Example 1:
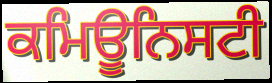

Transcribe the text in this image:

ਕਮਿਊਨਿਸਟੀ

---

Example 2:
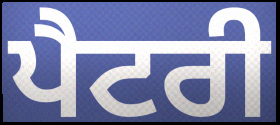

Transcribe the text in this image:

ਪੈਟਰੀ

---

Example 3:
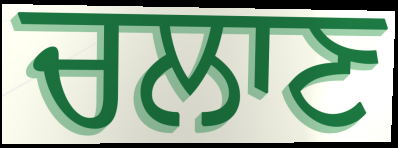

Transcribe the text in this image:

ਚਲਾਣ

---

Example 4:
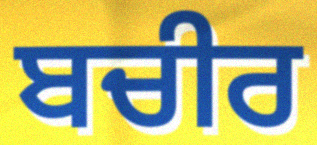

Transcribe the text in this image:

ਬਚੀਰ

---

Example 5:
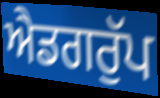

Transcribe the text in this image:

ਐਡਗਰੁੱਪ